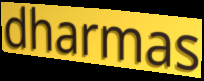
dharmas